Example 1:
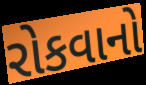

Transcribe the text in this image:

રોકવાનો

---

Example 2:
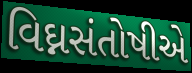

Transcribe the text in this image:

વિઘ્નસંતોષીએ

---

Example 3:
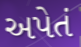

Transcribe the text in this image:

અપેતં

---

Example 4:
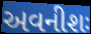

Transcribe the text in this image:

અવનીશઃ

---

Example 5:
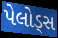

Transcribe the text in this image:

પેલોડ્સ